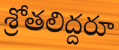
శ్రోతలిద్దరూ